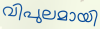
വിപുലമായി